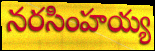
నరసింహయ్య